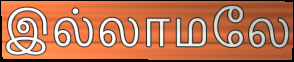
இல்லாமலே